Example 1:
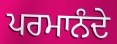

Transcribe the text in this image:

ਪਰਮਾਨੰਦੇ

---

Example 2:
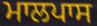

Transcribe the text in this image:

ਮਾਲਪਾਸ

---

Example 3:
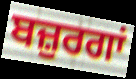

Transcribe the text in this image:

ਬਜ਼ੁਰਗਾਂ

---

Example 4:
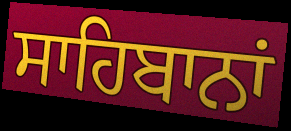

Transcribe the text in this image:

ਸਾਹਿਬਾਨਾਂ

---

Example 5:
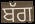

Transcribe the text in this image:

ਬੱਗ